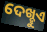
ଦେଖ୍ହୁଏ